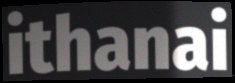
ithanai